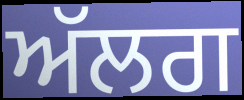
ਅੱਲਗ